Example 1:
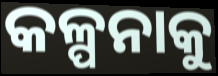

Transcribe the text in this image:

କଳ୍ପନାକୁ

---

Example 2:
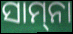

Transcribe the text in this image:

ସାମ୍‍ନା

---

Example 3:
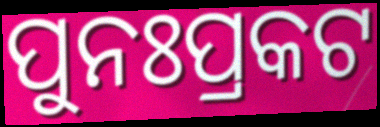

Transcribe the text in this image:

ପୁନଃପ୍ରକଟ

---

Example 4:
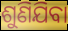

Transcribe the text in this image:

ଶୁଣିଯିବା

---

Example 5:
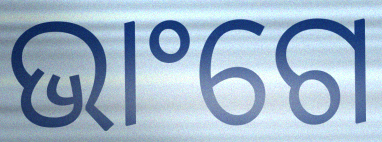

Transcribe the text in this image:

ଭାଂଗେ